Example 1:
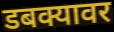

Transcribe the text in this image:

डबक्यावर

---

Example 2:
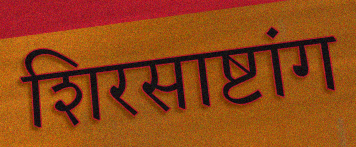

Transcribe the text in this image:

शिरसाष्टांग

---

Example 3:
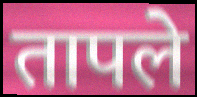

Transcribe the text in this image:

तापले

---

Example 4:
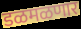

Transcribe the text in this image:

डळमळणार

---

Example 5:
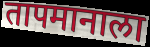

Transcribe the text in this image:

तापमानाला